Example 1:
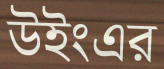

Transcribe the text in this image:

উইংএর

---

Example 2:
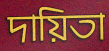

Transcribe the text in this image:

দায়িতা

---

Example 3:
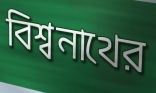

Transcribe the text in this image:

বিশ্বনাথের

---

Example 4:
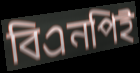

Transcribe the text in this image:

বিএনপিই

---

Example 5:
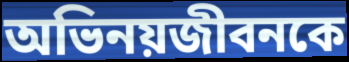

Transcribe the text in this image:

অভিনয়জীবনকে